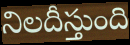
నిలదీస్తుంది